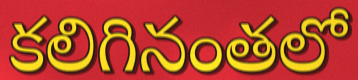
కలిగినంతలో